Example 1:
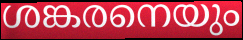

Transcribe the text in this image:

ശങ്കരനെയും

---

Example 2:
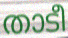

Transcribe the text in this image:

താടീ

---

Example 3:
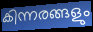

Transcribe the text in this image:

കിന്നരങ്ങളും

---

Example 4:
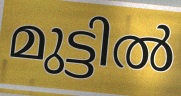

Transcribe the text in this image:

മുട്ടിൽ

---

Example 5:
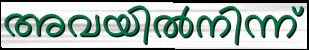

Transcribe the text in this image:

അവയിൽനിന്ന്